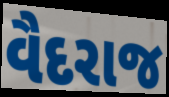
વૈદરાજ